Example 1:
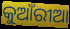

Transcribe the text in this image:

କୁଆଁରୀଆ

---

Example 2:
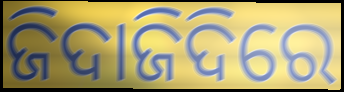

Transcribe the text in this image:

ଜିଦାଜିଦିରେ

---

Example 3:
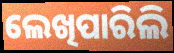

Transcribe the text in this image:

ଲେଖିପାରିଲି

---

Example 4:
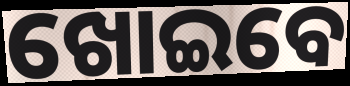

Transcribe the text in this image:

ଖୋଇବେ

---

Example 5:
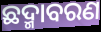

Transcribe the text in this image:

ଛଦ୍ମାବରଣ